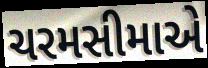
ચરમસીમાએ